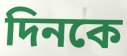
দিনকে